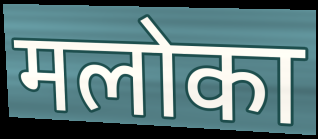
मलोका